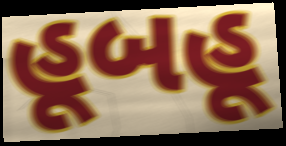
હૂબહૂ